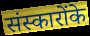
संस्कारोंके